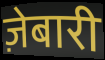
ज़ेबारी